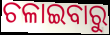
ଚଳାଇବାରୁ